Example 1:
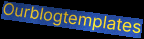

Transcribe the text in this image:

Ourblogtemplates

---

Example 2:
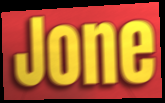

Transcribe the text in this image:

Jone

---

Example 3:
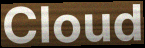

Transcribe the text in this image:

Cloud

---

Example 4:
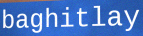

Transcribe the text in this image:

baghitlay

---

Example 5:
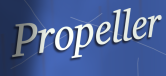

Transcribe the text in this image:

Propeller